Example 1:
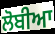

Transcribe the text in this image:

ਲੋਬੀਆ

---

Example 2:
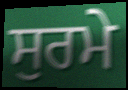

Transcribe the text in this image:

ਸੁਰਮੇ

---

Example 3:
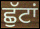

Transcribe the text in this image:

ਛੁੱਟਾਂ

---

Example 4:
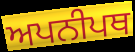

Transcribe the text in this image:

ਅਪਨੀਪਥ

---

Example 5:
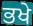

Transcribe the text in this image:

ਭਖੇ